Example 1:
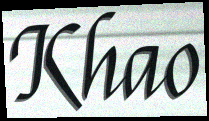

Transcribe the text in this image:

Khao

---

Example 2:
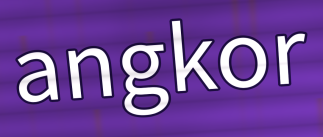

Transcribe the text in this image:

angkor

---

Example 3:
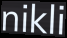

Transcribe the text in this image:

nikli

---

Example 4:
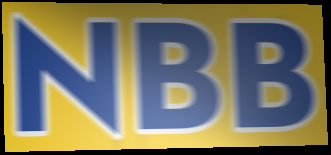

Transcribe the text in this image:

NBB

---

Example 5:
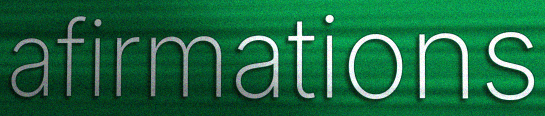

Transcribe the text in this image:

afirmations